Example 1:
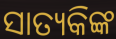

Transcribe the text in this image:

ସାତ୍ୟକିଙ୍କ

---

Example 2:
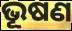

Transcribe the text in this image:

ଭୂଷଣ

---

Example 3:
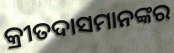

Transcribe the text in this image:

କ୍ରୀତଦାସମାନଙ୍କର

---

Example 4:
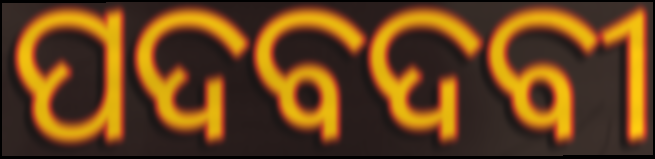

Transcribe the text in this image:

ପଦବଦବୀ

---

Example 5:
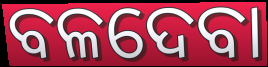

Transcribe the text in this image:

ବଳଦେବା